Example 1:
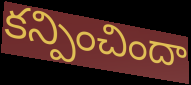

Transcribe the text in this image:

కన్పించిందా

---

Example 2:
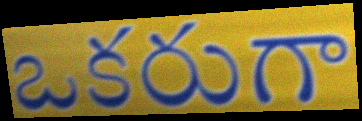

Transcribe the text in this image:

ఒకరుగా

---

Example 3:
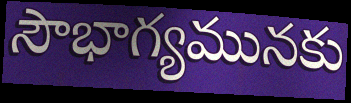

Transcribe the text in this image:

సౌభాగ్యమునకు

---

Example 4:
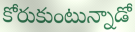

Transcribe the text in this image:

కోరుకుంటున్నాడో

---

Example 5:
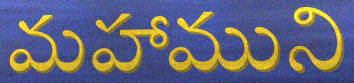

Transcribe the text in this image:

మహాముని